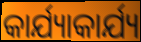
କାର୍ଯ୍ୟାକାର୍ଯ୍ୟ